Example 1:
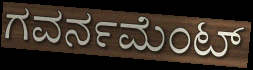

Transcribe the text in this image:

ಗವರ್ನಮೆಂಟ್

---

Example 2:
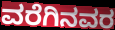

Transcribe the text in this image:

ವರೆಗಿನವರ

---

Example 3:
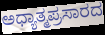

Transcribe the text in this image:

ಅಧ್ಯಾತ್ಮಪ್ರಸಾರದ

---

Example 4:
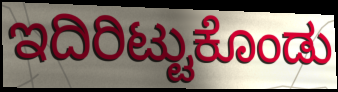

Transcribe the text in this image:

ಇದಿರಿಟ್ಟುಕೊಂಡು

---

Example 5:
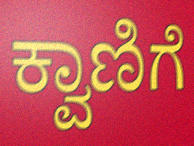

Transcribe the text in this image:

ಕ್ವಾಣಿಗೆ